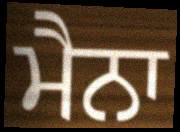
ਮੈਨਾ